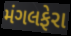
મંગલફેરા